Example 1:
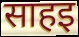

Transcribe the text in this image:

साहइ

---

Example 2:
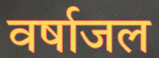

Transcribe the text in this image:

वर्षाजल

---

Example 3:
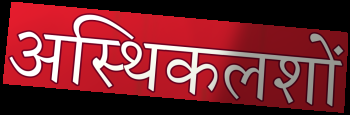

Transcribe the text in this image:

अस्थिकलशों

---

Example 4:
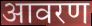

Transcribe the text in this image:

आवरण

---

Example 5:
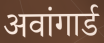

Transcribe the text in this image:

अवांगार्ड